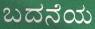
ಬದನೆಯ